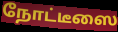
நோட்டீஸை